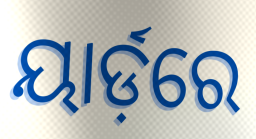
ୟାର୍ଡ଼ରେ